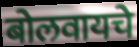
बोलवायचे